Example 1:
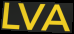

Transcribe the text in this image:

LVA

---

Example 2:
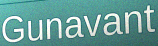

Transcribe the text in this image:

Gunavant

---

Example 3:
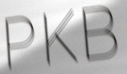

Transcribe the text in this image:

PKB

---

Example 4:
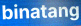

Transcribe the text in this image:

binatang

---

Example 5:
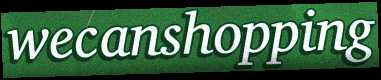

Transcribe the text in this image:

wecanshopping